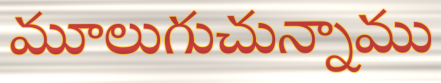
మూలుగుచున్నాము